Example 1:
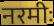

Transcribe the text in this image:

नरमीः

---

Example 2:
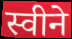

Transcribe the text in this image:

स्वीने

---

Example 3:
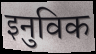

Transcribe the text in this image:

इनुविक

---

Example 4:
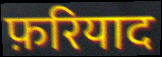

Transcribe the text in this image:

फ़रियाद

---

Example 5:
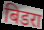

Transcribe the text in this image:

बिडरा